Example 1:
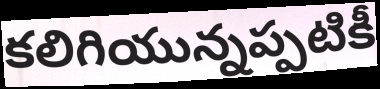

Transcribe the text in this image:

కలిగియున్నప్పటికీ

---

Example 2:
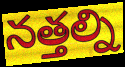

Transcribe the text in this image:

నత్తల్ని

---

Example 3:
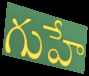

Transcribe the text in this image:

గుహే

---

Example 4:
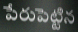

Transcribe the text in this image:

పేరుపెట్టిన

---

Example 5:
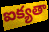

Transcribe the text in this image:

ఐక్యతా